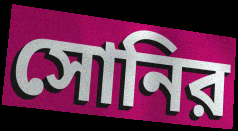
সোনির